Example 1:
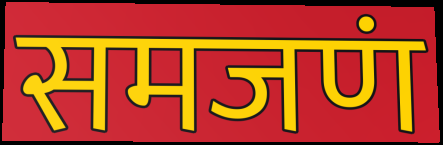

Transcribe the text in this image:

समजणं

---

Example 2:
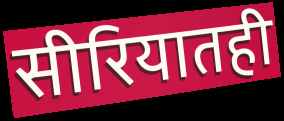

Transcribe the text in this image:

सीरियातही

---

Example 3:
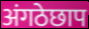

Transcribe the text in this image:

अंगठेछाप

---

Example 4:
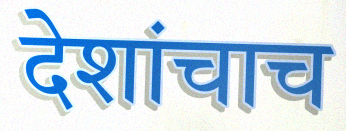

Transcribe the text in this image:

देशांचाच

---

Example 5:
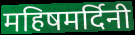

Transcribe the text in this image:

महिषमर्दिनी